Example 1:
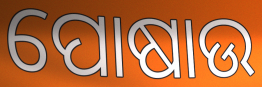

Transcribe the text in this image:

ପୋଷାଉ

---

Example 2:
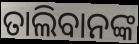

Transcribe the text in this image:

ତାଲିବାନଙ୍କ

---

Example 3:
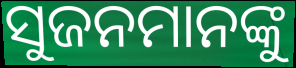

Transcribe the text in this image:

ସୁଜନମାନଙ୍କୁ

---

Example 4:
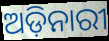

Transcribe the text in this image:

ଅଡ଼ିନାରୀ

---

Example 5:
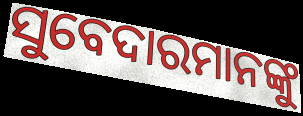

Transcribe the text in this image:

ସୁବେଦାରମାନଙ୍କୁ